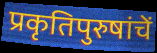
प्रकृतिपुरुषांचें